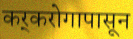
कर्करोगापासून